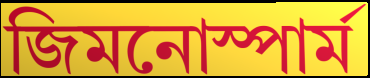
জিমনোস্পার্ম